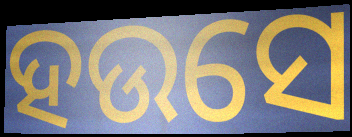
ହଉସେ